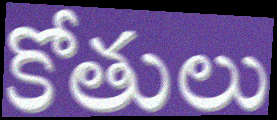
కోతులు